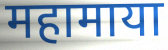
महामाया